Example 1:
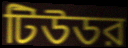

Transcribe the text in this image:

টিউডর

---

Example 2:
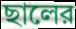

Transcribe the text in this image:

ছালের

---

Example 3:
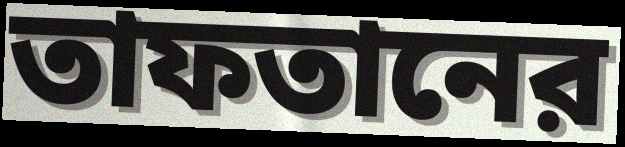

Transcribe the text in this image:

তাফতানের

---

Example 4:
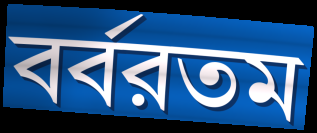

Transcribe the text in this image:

বর্বরতম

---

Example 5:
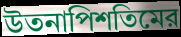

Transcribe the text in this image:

উতনাপিশতিমের